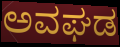
ಅವಘಡ